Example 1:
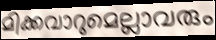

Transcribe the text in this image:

മിക്കവാറുമെല്ലാവരും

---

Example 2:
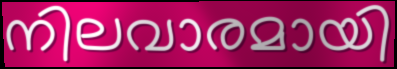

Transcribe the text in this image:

നിലവാരമായി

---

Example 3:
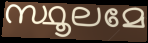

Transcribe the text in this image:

സ്ഥൂലമേ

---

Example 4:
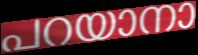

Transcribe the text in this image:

പറയാനാ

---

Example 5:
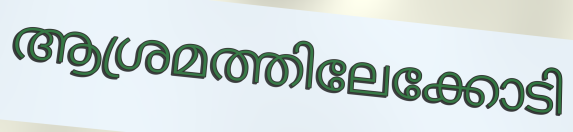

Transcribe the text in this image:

ആശ്രമത്തിലേക്കോടി